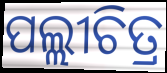
ପଲ୍ଲୀଚିତ୍ର